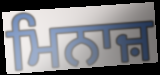
ਮਿਨਾਜ਼